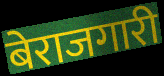
बेराजगारी